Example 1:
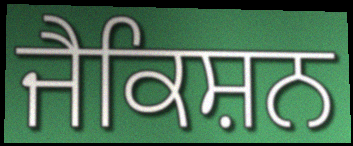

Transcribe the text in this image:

ਜੈਕਿਸ਼ਨ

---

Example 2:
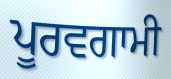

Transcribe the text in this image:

ਪੂਰਵਗਾਮੀ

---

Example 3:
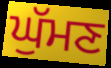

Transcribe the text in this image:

ਘੁੱਮਣ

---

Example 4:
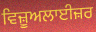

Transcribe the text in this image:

ਵਿਜ਼ੂਅਲਾਈਜ਼ਰ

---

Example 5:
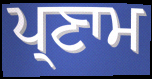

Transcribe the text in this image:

ਪ੍ਣਾਮ